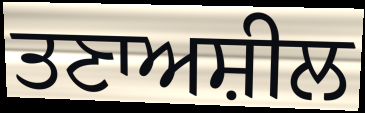
ਤਣਾਅਸ਼ੀਲ